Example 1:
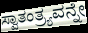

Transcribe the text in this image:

ಸ್ವಾತಂತ್ರ್ಯವನ್ನೇ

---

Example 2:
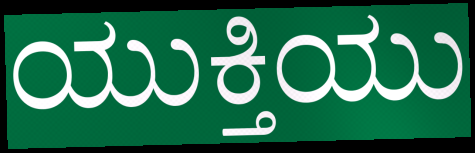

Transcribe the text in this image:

ಯುಕ್ತಿಯು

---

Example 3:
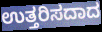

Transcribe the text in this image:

ಉತ್ತರಿಸದಾದ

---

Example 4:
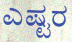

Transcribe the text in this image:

ಎಷ್ಟರ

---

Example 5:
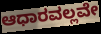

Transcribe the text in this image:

ಆಧಾರವಲ್ಲವೇ